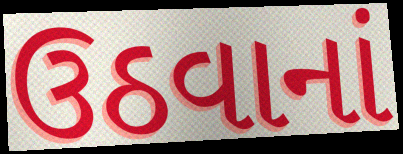
ઉઠવાનાં